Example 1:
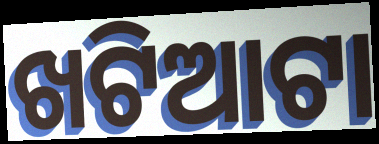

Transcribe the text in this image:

ଖଟିଆଟା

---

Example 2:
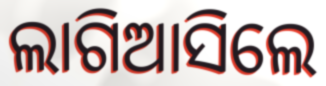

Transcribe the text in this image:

ଲାଗିଆସିଲେ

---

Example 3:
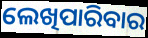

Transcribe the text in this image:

ଲେଖିପାରିବାର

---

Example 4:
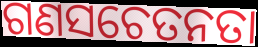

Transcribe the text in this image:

ଗଣସଚେତନତା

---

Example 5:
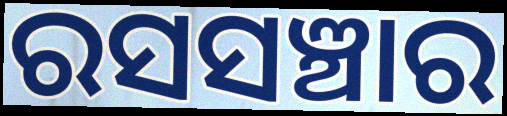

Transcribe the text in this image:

ରସସଞ୍ଚାର